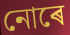
নোৰে